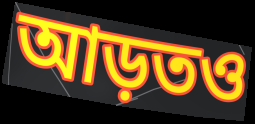
আড়তও